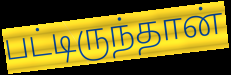
பட்டிருந்தான்